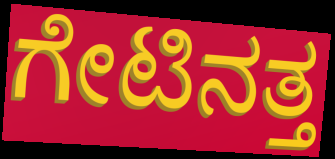
ಗೇಟಿನತ್ತ